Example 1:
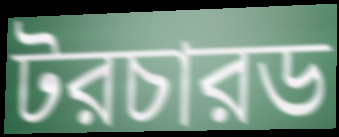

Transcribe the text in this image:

টরচারড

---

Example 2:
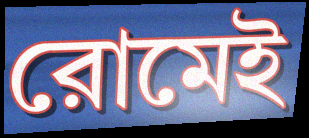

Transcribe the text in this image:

রোমেই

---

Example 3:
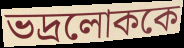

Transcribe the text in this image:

ভদ্রলোককে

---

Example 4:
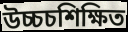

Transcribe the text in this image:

উচ্চচশিক্ষিত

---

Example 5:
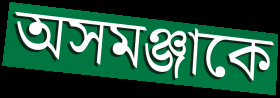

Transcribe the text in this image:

অসমঞ্জাকে